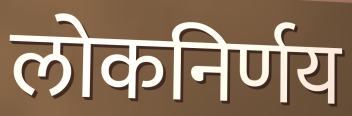
लोकनिर्णय